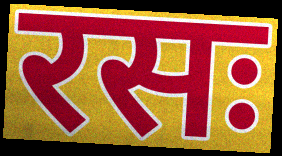
रसः